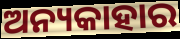
ଅନ୍ୟକାହାର